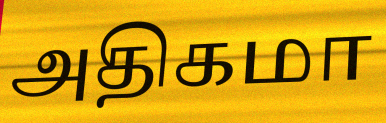
அதிகமா